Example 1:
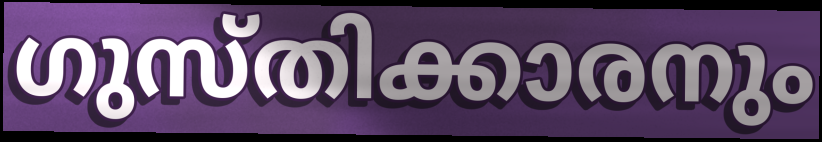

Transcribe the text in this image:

ഗുസ്തിക്കാരനും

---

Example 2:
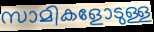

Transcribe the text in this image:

സാമികളോടുള്ള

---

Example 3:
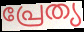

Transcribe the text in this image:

പ്രേത്യ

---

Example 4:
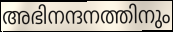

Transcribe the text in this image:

അഭിനന്ദനത്തിനും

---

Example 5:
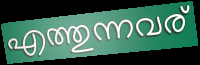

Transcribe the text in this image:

എത്തുന്നവര്